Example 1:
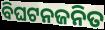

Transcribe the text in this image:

ବିଘଟନଜନିତ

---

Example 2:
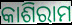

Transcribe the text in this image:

କାଶିରାମ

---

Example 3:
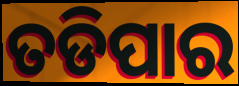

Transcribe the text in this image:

ତଡିପାର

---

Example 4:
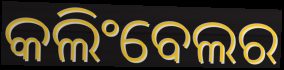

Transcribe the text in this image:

କଲିଂବେଲର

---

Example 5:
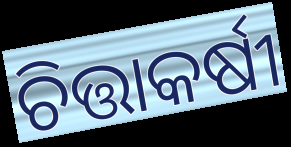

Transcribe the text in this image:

ଚିତ୍ତାକର୍ଷୀ